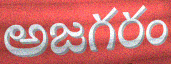
అజగరం